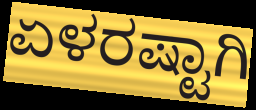
ಏಳರಷ್ಟಾಗಿ